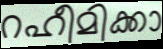
റഹീമിക്കാ